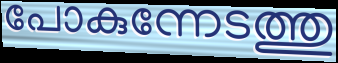
പോകുന്നേടത്തു